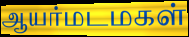
ஆயர்மடமகள்